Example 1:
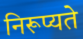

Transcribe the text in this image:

निरूप्यते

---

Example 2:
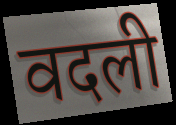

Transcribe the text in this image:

वदली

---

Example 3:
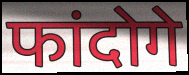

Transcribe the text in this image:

फांदोगे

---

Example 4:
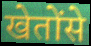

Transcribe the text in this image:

खेतोंसे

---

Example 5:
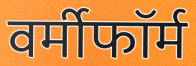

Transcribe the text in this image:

वर्मीफॉर्म